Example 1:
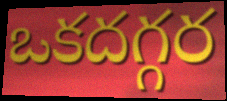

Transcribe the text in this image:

ఒకదగ్గర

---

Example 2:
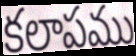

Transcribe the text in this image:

కలాపము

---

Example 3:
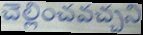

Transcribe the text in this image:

చెల్లించవచ్చని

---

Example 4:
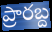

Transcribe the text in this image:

ప్రారబ్ద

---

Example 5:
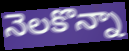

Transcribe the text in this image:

నెలకొన్నా